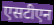
एसटीएन